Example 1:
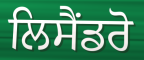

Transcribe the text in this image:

ਲਿਸੈਂਡਰੋ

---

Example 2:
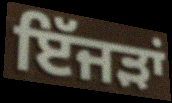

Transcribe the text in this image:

ਇੱਜੜਾਂ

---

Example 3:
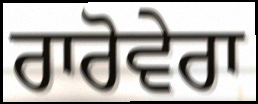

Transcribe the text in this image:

ਰਾਰੋਵੇਰਾ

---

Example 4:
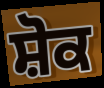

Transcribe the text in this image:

ਸ਼ੋਕ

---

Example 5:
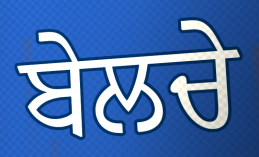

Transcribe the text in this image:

ਬੇਲਚੇ